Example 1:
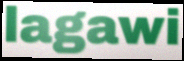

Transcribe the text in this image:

lagawi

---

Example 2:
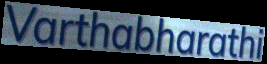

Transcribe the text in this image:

Varthabharathi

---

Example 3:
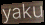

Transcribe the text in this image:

yaku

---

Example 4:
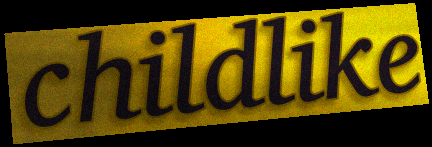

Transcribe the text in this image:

childlike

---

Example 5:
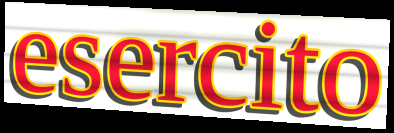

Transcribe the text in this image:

esercito